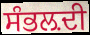
ਸੰਭਲ਼ਦੀ